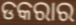
ଡକରାର